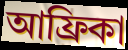
আফ্ৰিকা